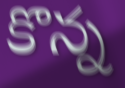
కొన్న